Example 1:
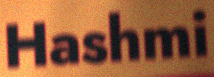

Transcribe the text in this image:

Hashmi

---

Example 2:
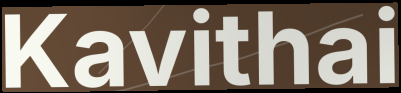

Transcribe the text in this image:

Kavithai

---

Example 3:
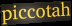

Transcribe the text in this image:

piccotah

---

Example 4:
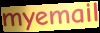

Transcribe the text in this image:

myemail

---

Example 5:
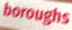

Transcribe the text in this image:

boroughs